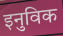
इनुविक